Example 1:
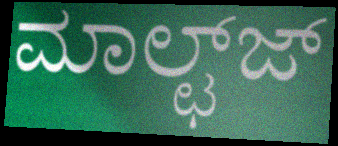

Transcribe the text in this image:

ಮಾಲ್ಟ್‌ಜ್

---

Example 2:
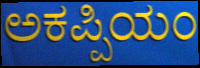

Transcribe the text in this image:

ಅಕಪ್ಪಿಯಂ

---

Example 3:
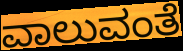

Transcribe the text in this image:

ವಾಲುವಂತೆ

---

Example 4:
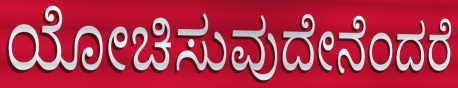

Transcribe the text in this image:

ಯೋಚಿಸುವುದೇನೆಂದರೆ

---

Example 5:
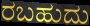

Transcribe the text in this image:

ರಬಹುದು